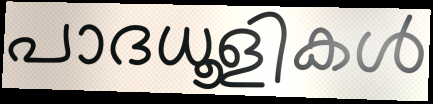
പാദധൂളികൾ